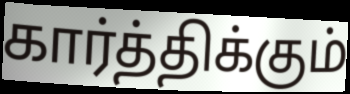
கார்த்திக்கும்